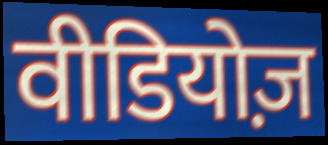
वीडियोज़